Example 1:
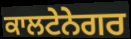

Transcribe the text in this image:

ਕਾਲਟੇਨੇਗਰ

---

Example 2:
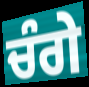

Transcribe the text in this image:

ਚੰਗੇ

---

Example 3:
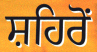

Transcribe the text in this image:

ਸ਼ਹਿਰੋਂ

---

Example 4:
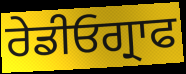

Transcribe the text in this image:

ਰੇਡੀਓਗ੍ਰਾਫ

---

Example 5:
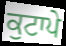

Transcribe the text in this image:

ਕੁਟਾਪੇ